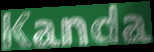
Kanda